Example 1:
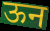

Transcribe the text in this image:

ऊन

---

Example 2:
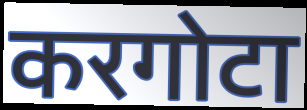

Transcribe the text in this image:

करगोटा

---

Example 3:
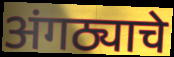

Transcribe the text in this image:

अंगठ्याचे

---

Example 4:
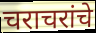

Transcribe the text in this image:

चराचरांचे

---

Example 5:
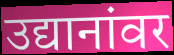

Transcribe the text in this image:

उद्यानांवर